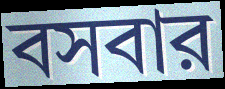
বসবার